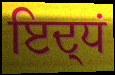
ਇਦ੍ਧਂ